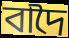
বাদৈ